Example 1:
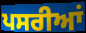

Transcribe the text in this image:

ਪਸਰੀਆਂ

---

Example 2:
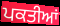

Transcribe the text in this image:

ਪਕਤੀਆਂ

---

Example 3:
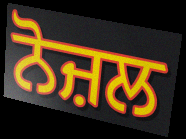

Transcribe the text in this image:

ਨੋਜ਼ਲ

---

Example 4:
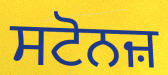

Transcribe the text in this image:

ਸਟੋਨਜ਼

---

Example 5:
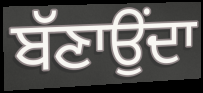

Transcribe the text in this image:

ਬੱਣਾਉਂਦਾ